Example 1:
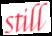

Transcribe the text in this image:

still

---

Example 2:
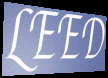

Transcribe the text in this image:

LEED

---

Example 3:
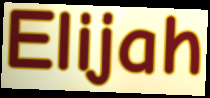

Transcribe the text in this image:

Elijah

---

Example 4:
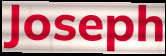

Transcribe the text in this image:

Joseph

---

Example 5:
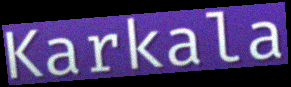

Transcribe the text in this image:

Karkala